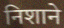
निशाने